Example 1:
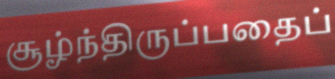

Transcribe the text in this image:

சூழ்ந்திருப்பதைப்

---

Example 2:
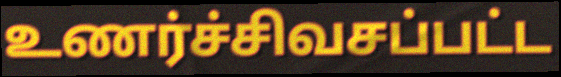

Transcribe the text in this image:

உணர்ச்சிவசப்பட்ட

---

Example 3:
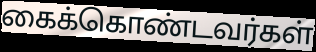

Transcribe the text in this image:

கைக்கொண்டவர்கள்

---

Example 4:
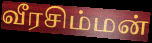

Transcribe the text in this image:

வீரசிம்மன்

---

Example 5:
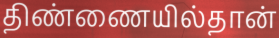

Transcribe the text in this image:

திண்ணையில்தான்